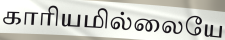
காரியமில்லையே